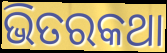
ଭିତରକଥା